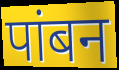
पांबन